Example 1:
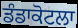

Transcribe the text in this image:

ਡੰਡਾਕੋਟਲਾ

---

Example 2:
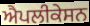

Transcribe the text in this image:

ਐਪਲੀਕੇਸਨ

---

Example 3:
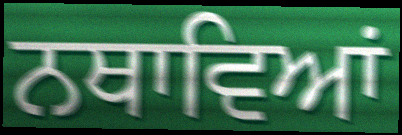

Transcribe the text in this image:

ਨਥਾਵਿਆਂ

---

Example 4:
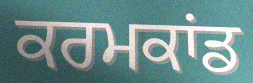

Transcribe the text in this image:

ਕਰਮਕਾਂਡ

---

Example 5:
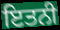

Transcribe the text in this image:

ਇਤਨੀ